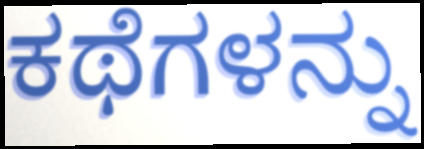
ಕಥೆಗಳನ್ನು